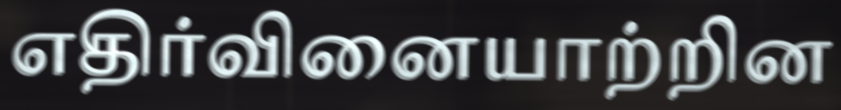
எதிர்வினையாற்றின